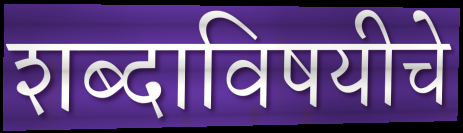
शब्दाविषयीचे